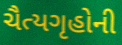
ચૈત્યગૃહોની